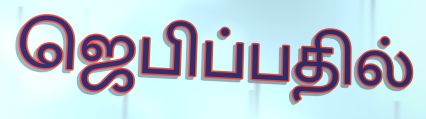
ஜெபிப்பதில்